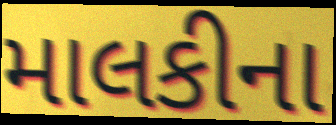
માલકીના